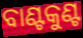
ବାଣ୍ଟକୁଣ୍ଟ